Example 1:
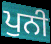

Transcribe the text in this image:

ਪੁਨੀ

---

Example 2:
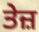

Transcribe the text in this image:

ਤੇਜ਼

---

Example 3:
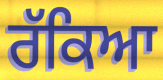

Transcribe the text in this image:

ਰੱਕਿਆ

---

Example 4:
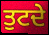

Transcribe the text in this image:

ਤੁਟਦੇ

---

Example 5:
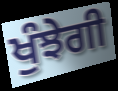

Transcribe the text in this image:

ਖੁੰਝੇਗੀ